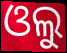
ଓଲୁ